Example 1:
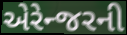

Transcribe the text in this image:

એરેન્જરની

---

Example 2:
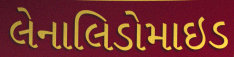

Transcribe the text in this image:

લેનાલિડોમાઇડ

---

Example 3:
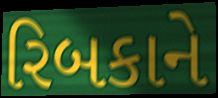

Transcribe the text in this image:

રિબકાને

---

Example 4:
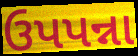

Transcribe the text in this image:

ઉપપન્ના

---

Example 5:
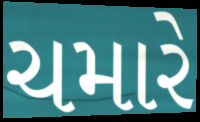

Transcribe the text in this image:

ચમારે